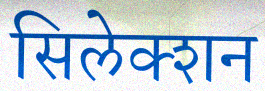
सिलेक्शन